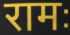
रामः